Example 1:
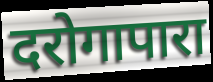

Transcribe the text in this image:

दरोगापारा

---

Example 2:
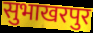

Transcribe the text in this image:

सुभाखरपुर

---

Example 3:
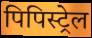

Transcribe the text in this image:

पिपिस्ट्रेल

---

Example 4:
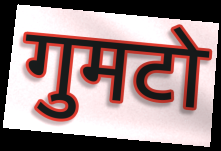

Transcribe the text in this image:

गुमटो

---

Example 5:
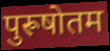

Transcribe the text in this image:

पुरूषोतम